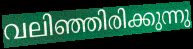
വലിഞ്ഞിരിക്കുന്നു